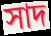
সাদ